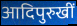
आदिपुरुखीं